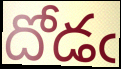
దోడఁ